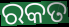
ରକତ